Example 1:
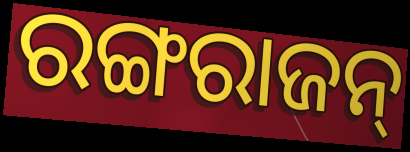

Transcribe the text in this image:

ରଙ୍ଗରାଜନ୍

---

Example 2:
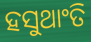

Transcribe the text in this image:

ହସୁଥାଂତି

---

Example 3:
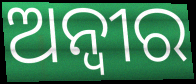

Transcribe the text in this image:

ଅନ୍ୱୀର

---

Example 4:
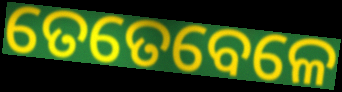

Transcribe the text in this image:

ତେତେବେଳେ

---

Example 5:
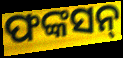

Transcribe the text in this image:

ଫଙ୍କସନ୍